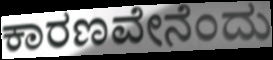
ಕಾರಣವೇನೆಂದು